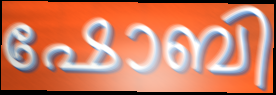
ഷോബി